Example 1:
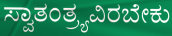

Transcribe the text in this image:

ಸ್ವಾತಂತ್ರ್ಯವಿರಬೇಕು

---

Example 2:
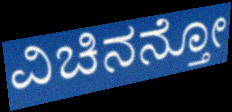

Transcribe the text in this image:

ವಿಚಿನನ್ತೋ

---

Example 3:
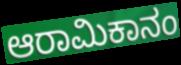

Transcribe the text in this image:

ಆರಾಮಿಕಾನಂ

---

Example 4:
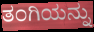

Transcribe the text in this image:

ತಂಗಿಯನ್ನು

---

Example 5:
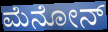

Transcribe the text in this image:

ಮೆನೋನ್